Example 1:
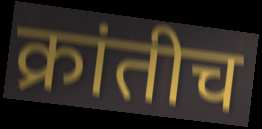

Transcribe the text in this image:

क्रांतीच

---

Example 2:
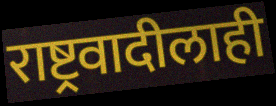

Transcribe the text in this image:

राष्ट्रवादीलाही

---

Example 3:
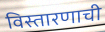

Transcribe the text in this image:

विस्तारणाची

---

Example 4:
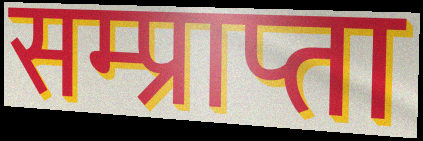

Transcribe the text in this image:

सम्प्राप्ता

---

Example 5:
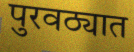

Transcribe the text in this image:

पुरवठ्यात